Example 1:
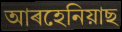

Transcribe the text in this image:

আৰহেনিয়াছ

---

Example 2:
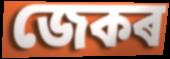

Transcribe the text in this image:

জেকৰ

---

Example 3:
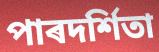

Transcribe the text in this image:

পাৰদৰ্শিতা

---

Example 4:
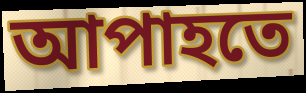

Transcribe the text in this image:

আপাহতে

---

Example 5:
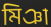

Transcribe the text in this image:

মিঞা